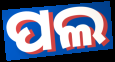
ପଲ